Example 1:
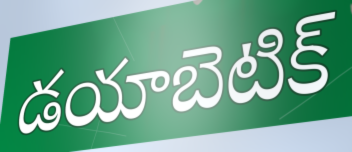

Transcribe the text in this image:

డయాబెటిక్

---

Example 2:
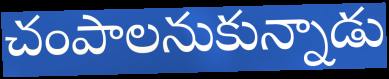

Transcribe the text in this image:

చంపాలనుకున్నాడు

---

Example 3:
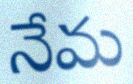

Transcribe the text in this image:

నేమ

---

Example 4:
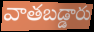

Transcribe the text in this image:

వాతబడ్డారు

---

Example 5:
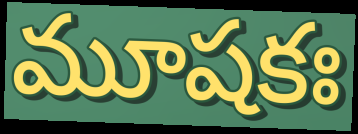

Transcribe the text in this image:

మూషకః